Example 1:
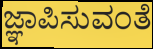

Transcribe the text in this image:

ಜ್ಞಾಪಿಸುವಂತೆ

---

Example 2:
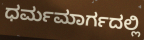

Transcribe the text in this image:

ಧರ್ಮಮಾರ್ಗದಲ್ಲಿ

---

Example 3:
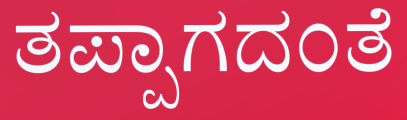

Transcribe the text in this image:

ತಪ್ಪಾಗದಂತೆ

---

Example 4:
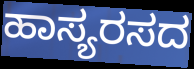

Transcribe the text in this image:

ಹಾಸ್ಯರಸದ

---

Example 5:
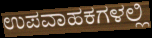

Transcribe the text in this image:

ಉಪವಾಹಕಗಳಲ್ಲಿ